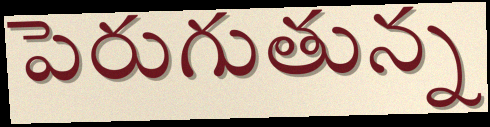
పెరుగుతున్న